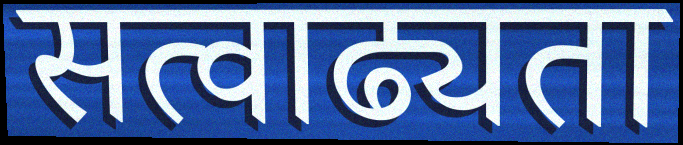
सत्वाढ्यता